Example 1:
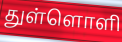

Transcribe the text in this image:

துள்ளொளி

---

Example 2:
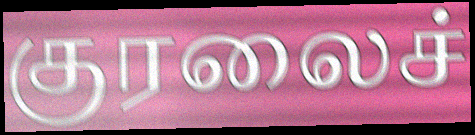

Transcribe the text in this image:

குரலைச்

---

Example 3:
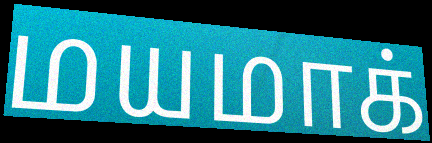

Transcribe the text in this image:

மயமாக்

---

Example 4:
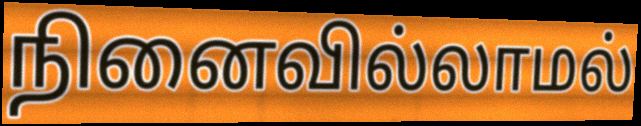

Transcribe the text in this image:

நினைவில்லாமல்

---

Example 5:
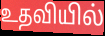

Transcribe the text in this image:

உதவியில்